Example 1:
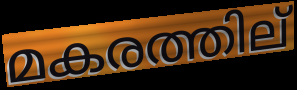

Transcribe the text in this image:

മകരത്തില്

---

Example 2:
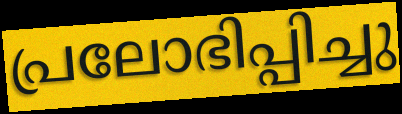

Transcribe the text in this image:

പ്രലോഭിപ്പിച്ചു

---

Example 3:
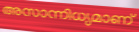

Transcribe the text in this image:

അസാന്നിധ്യമാണ്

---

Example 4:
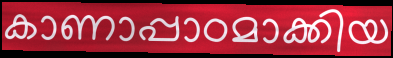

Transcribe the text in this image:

കാണാപ്പാഠമാക്കിയ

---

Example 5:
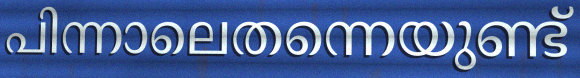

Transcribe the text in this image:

പിന്നാലെതന്നെയുണ്ട്